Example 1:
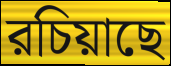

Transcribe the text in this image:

রচিয়াছে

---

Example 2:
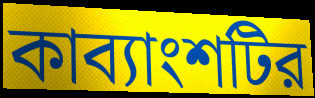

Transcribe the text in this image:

কাব্যাংশটির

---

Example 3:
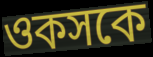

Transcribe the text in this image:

ওকসকে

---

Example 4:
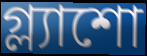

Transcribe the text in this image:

গ্ল্যাশো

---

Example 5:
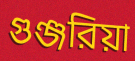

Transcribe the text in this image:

গুঞ্জরিয়া